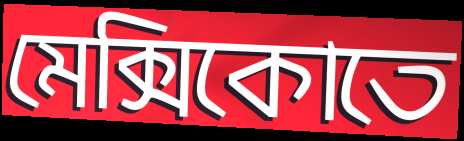
মেক্সিকোতে